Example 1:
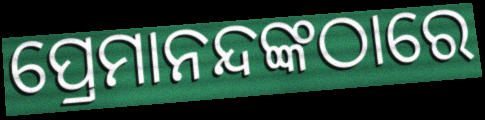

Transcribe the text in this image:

ପ୍ରେମାନନ୍ଦଙ୍କଠାରେ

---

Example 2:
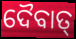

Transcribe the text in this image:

ଦୈବାତ୍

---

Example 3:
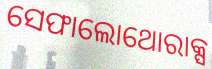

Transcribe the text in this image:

ସେଫାଲୋଥୋରାକ୍ସ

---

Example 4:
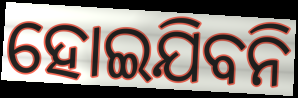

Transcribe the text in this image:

ହୋଇଯିବନି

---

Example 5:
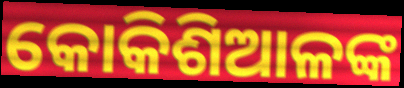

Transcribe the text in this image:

କୋକିଶିଆଳଙ୍କ